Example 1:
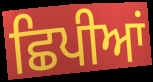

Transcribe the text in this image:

ਛਿਪੀਆਂ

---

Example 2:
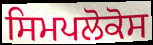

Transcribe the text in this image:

ਸਿਮਪਲੋਕੋਸ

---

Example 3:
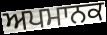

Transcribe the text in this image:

ਅਪਮਾਨਕ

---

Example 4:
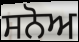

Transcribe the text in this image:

ਸਨੋਅ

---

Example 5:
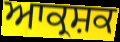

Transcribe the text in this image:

ਆਕ੍ਰਸ਼ਕ